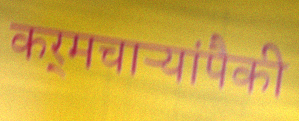
कर्मचाऱ्यांपैकी